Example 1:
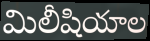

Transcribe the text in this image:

మిలీషియాల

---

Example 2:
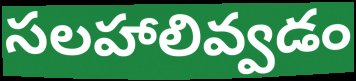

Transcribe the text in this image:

సలహాలివ్వడం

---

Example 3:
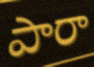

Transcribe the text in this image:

పారా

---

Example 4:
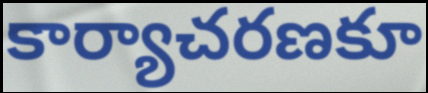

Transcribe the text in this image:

కార్యాచరణకూ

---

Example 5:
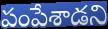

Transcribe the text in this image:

పంపేశాడని